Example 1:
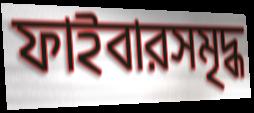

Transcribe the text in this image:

ফাইবারসমৃদ্ধ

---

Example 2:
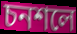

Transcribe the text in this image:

চনশলে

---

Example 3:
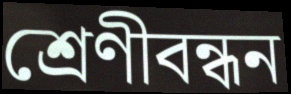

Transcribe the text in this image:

শ্রেণীবন্ধন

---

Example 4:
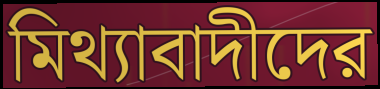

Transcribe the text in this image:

মিথ্যাবাদীদের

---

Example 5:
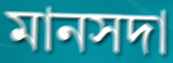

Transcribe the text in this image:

মানসদা